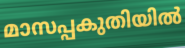
മാസപ്പകുതിയിൽ